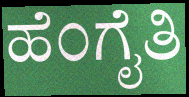
ಹೆಂಗೈತಿ